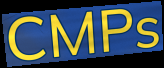
CMPs